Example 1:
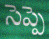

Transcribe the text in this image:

సెప్పె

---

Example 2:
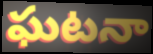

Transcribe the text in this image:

ఘటనా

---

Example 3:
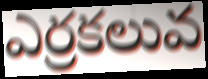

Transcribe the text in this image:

ఎర్రకలువ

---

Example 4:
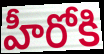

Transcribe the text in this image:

హీరోకి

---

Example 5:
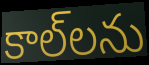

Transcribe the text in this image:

కాల్‌లను